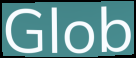
Glob